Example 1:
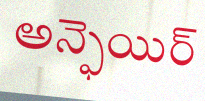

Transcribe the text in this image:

అన్ఫెయిర్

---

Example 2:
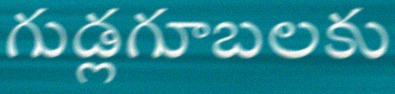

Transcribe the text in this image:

గుడ్లగూబలకు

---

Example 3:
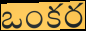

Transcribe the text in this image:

ఒంకర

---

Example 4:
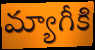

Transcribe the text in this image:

మ్యాగీకి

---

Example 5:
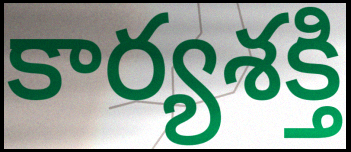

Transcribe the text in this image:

కార్యశక్తి